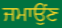
ਜਮਾਉਂਣ